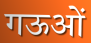
गऊओं